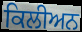
ਕਿਲੀਅਨ